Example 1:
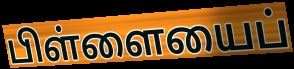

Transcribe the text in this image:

பிள்ளையைப்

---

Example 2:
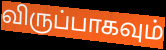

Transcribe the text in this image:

விருப்பாகவும்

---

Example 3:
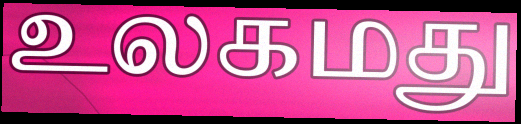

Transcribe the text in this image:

உலகமது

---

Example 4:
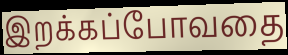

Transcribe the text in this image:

இறக்கப்போவதை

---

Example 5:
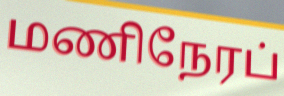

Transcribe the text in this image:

மணிநேரப்